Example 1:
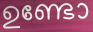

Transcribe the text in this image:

ഉണ്ടോ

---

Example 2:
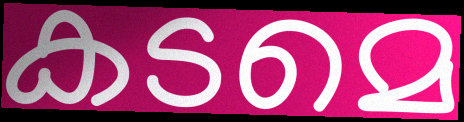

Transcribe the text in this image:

കടമെ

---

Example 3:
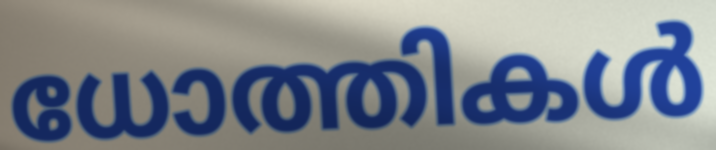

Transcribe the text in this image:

ധോത്തികൾ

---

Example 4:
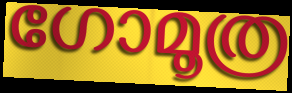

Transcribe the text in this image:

ഗോമൂത്ര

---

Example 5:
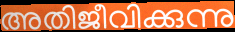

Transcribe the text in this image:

അതിജീവിക്കുന്നു